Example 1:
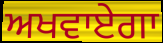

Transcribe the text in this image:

ਅਖਵਾਏਗਾ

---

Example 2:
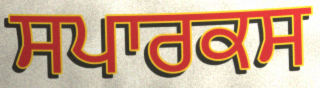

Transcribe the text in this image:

ਸਪਾਰਕਸ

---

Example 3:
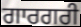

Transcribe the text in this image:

ਗਾਰਗਰੀ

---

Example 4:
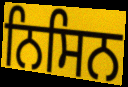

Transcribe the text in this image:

ਨਿਸਿਨ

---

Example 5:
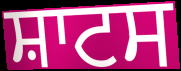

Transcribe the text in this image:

ਸ਼ਾਟਸ